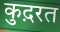
कुद़रत